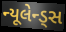
ન્યૂલેન્ડ્સ